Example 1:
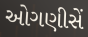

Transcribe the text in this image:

ઓગણીસેં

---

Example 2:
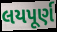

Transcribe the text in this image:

લયપૂર્ણ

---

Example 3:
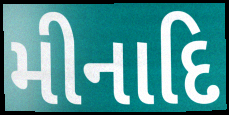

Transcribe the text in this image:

મીનાદિ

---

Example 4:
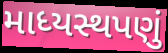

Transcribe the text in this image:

માધ્યસ્થપણું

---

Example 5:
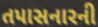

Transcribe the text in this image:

તપાસનારની